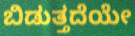
ಬಿಡುತ್ತದೆಯೇ